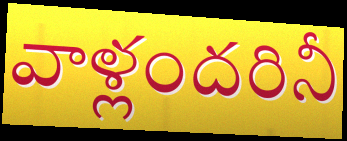
వాళ్లందరినీ